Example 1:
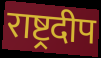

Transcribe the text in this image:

राष्ट्रदीप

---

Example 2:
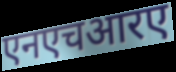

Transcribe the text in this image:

एनएचआरए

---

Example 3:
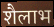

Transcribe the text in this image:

शैलाभ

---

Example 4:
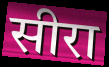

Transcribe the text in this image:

सीरा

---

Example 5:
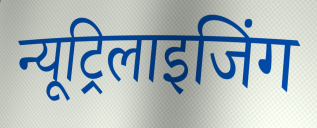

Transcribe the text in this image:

न्यूट्रिलाइजिंग